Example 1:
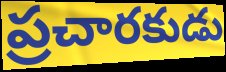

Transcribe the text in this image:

ప్రచారకుడు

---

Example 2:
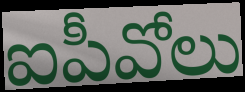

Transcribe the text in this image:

ఐపీవోలు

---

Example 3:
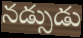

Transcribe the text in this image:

నడ్సుడు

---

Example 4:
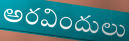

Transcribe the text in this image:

అరవిందులు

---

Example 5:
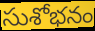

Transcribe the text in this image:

సుశోభనం